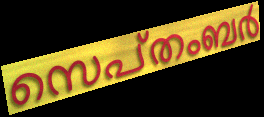
സെപ്‌തംബർ